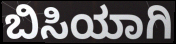
ಬಿಸಿಯಾಗಿ